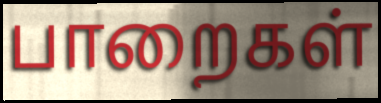
பாறைகள்